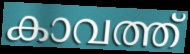
കാവത്ത്